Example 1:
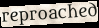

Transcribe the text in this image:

reproached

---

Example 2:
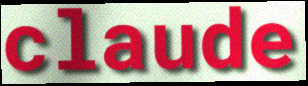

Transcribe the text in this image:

claude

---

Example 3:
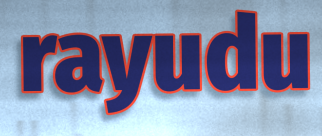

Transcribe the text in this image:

rayudu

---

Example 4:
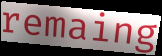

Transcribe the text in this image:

remaing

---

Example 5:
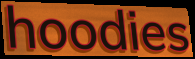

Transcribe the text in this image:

hoodies